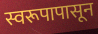
स्वरूपापासून